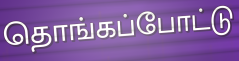
தொங்கப்போட்டு